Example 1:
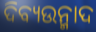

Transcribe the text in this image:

ଦିବ୍ୟଉନ୍ମାଦ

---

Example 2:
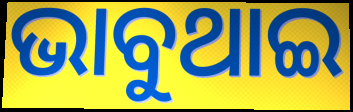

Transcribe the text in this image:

ଭାବୁଥାଇ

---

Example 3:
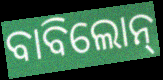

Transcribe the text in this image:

ବାବିଲୋନ୍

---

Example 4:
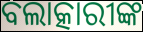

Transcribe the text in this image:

ବଲାତ୍କାରୀଙ୍କ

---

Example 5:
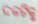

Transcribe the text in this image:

ଦଳଟିକୁ